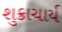
શુક્રાચાર્ય